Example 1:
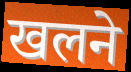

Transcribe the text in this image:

खलने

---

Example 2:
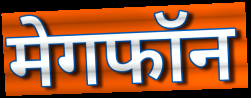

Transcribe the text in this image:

मेगफॉन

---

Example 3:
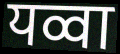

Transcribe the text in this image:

यव्वा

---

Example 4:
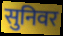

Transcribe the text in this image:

सुनिवर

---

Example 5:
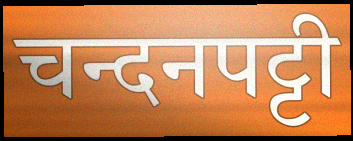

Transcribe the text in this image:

चन्दनपट्टी